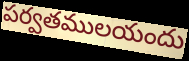
పర్వతములయందు